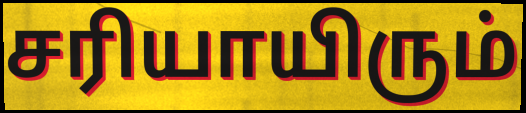
சரியாயிரும்